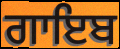
ਗਾਇਬ